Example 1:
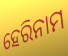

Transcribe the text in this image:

ହେରିନାମ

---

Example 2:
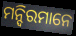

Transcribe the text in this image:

ମନ୍ଦିରମାନେ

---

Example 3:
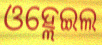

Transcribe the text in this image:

ଓହ୍ଲେଇଲ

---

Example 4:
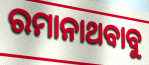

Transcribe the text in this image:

ରମାନାଥବାବୁ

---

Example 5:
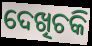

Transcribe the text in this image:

ଦେଖିଚକି